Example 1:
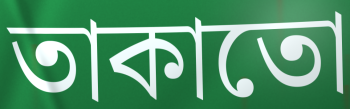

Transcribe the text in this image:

তাকাতো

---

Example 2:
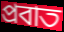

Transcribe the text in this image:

প্রবাত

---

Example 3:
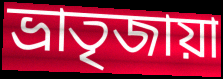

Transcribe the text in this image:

ভ্রাতৃজায়া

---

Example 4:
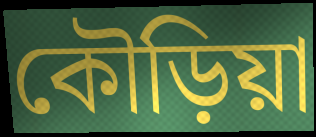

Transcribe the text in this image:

কৌড়িয়া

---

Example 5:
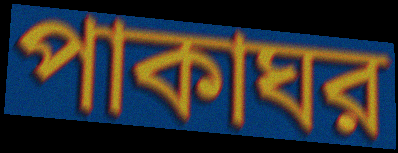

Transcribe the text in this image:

পাকাঘর